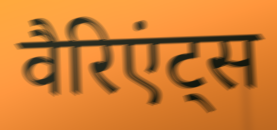
वैरिएंट्स